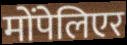
मोंपेलिएर